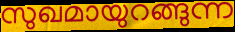
സുഖമായുറങ്ങുന്ന